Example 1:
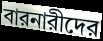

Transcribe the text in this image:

বারনারীদের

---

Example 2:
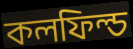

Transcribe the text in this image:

কলফিল্ড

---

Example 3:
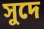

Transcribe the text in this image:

সুদে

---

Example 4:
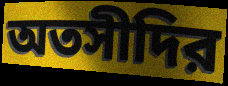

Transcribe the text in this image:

অতসীদির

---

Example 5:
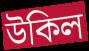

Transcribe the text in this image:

উকিল